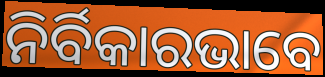
ନିର୍ବିକାରଭାବେ